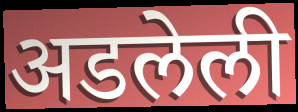
अडलेली